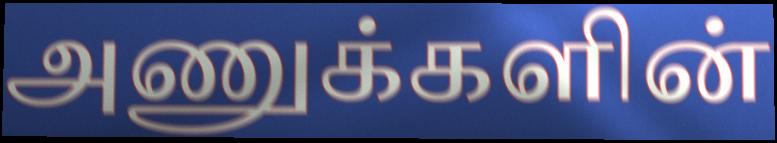
அணுக்களின்